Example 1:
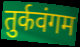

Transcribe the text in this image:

तुर्कवंगम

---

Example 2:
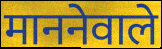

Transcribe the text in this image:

माननेवाले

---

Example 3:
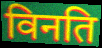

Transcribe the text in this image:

विनति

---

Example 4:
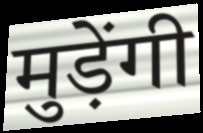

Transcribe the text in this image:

मुड़ेंगी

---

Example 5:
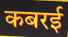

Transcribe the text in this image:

कबरई